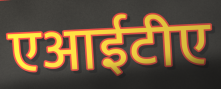
एआईटीए